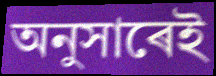
অনুসাৰেই